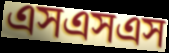
এসএসএস